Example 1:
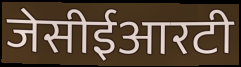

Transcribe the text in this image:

जेसीईआरटी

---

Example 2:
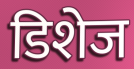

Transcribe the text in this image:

डिशेज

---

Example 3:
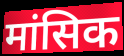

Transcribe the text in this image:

मांसिक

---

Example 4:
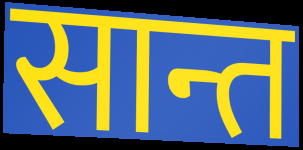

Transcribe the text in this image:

सान्त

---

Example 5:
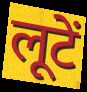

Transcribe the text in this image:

लूटें